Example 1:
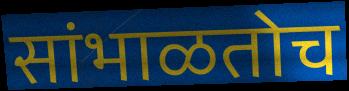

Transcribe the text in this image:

सांभाळतोच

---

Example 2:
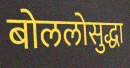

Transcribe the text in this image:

बोललोसुद्धा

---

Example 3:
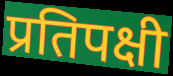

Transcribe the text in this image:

प्रतिपक्षी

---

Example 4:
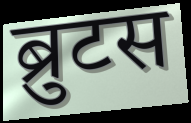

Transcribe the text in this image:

ब्रुटस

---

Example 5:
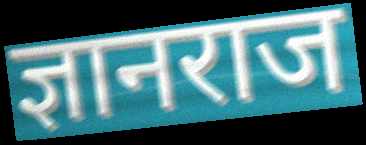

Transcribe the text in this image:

ज्ञानराज